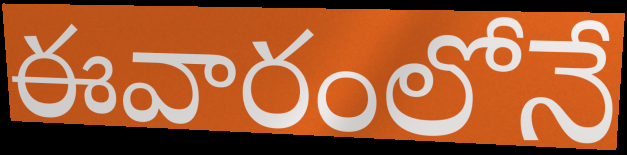
ఈవారంలోనే